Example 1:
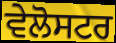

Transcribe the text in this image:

ਵੇਲੋਸਟਰ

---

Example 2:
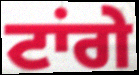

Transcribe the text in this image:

ਟਾਂਗੇ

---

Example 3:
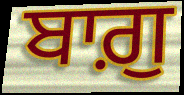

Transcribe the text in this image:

ਬਾਗ਼ੁ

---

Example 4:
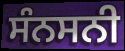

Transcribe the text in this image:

ਸੰਨਸਨੀ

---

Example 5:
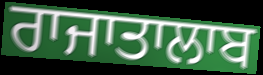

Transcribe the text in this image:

ਰਾਜਾਤਾਲਾਬ